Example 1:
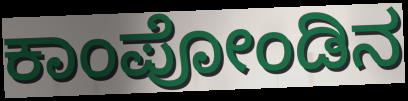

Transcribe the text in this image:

ಕಾಂಪೋಂಡಿನ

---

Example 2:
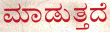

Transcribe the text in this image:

ಮಾಡುತ್ತದೆ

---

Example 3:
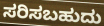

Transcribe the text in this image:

ಸರಿಸಬಹುದು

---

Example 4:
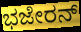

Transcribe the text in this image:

ಭಜೇರನ್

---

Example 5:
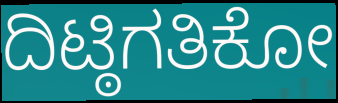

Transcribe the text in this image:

ದಿಟ್ಠಿಗತಿಕೋ